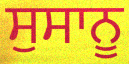
ਸੁਸਾਨੂ